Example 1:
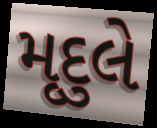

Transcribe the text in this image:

મૃદુલે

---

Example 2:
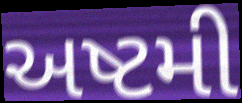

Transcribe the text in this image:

અષ્ટમી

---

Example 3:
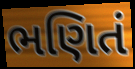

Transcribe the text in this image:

ભણિતં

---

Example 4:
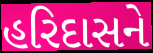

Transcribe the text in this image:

હરિદાસને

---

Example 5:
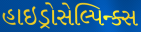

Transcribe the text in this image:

હાઇડ્રોસેલ્પિન્ક્સ